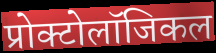
प्रोक्टोलॉजिकल